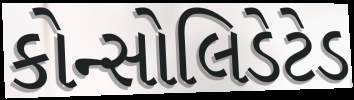
કોન્સોલિડેટેડ